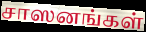
சாஸனங்கள்